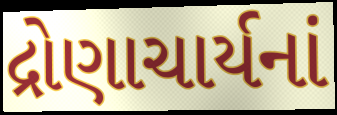
દ્રોણાચાર્યનાં